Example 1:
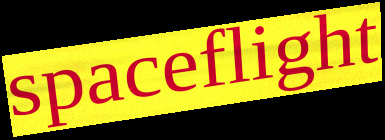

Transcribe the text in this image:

spaceflight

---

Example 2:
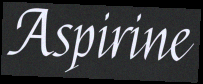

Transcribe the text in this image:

Aspirine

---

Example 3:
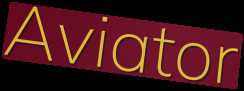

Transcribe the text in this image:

Aviator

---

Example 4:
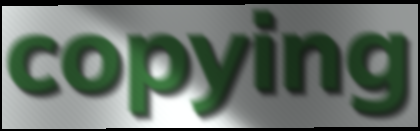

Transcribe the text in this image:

copying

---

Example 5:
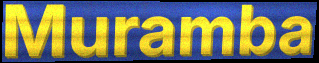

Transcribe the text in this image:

Muramba